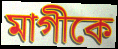
মাগীকে